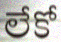
లేకో